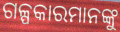
ଗଳ୍ପକାରମାନଙ୍କୁ